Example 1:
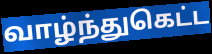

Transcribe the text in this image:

வாழ்ந்துகெட்ட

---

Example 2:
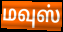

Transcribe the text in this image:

மவுஸ்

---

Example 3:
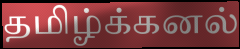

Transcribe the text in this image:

தமிழ்க்கனல்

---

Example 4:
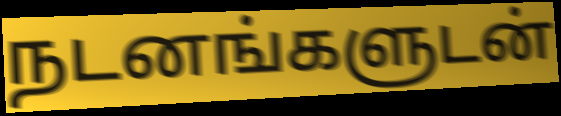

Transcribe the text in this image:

நடனங்களுடன்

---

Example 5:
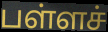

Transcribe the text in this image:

பள்ளச்